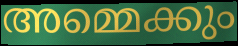
അമ്മെക്കും